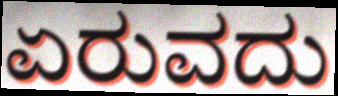
ಏರುವದು